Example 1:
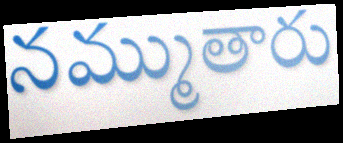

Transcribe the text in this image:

నమ్ముతారు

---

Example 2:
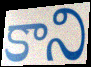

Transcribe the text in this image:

కాని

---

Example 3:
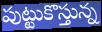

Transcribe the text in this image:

పుట్టుకొస్తున్న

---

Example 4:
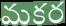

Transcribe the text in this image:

మకర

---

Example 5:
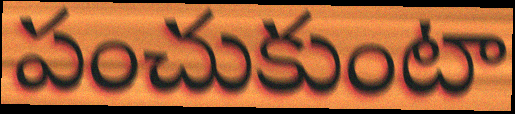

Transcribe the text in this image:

పంచుకుంటా